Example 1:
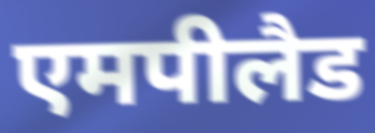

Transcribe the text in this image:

एमपीलैड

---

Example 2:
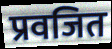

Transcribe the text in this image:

प्रवजित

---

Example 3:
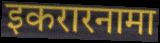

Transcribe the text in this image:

इकरारनामा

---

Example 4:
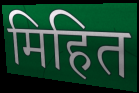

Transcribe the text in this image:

मिहित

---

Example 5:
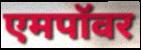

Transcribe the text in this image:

एमपॉवर